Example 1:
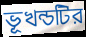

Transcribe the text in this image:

ভূখন্ডটির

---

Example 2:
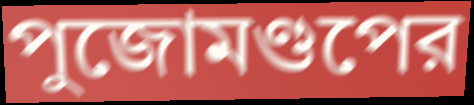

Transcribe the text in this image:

পুজোমণ্ডপের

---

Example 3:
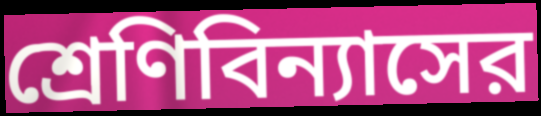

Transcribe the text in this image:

শ্রেণিবিন্যাসের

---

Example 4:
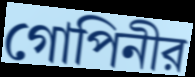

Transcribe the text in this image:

গোপিনীর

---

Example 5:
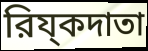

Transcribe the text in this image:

রিয্কদাতা